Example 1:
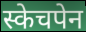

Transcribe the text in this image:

स्केचपेन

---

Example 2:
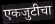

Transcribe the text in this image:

एकजुटीचा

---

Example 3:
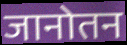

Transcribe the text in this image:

जानोतन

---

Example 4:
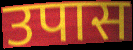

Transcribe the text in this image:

उपास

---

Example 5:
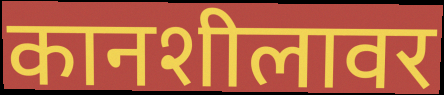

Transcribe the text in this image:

कानशीलावर